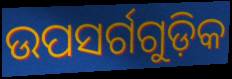
ଉପସର୍ଗଗୁଡ଼ିକ